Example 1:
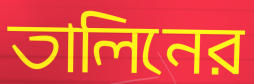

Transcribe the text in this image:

তালিনের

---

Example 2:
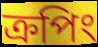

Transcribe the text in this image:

ক্রপিং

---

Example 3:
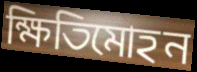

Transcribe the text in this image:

ক্ষিতিমোহন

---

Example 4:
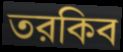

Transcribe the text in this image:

তরকিব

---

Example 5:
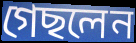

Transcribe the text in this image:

গেছলেন